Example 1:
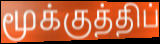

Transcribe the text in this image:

மூக்குத்திப்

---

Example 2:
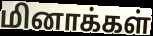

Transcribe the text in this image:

மினாக்கள்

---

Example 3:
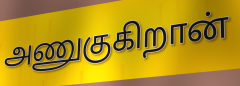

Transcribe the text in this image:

அணுகுகிறான்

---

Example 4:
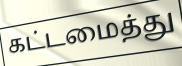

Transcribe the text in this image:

கட்டமைத்து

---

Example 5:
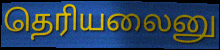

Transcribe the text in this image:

தெரியலைனு